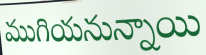
ముగియనున్నాయి